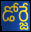
డోర్జే